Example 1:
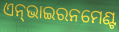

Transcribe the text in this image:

ଏନ୍‌ଭାଇରନମେଣ୍ଟ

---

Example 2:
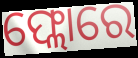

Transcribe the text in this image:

ଫ୍ଲୋରେ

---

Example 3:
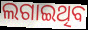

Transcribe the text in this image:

ଲଗାଇଥିବ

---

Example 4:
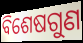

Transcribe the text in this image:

ବିଶେଷଗୁଣ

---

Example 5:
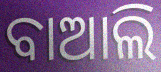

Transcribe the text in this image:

ବାଆଲି